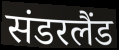
संडरलैंड